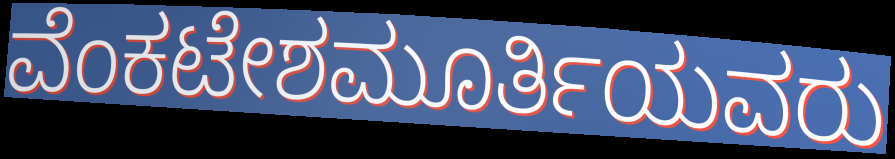
ವೆಂಕಟೇಶಮೂರ್ತಿಯವರು